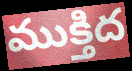
ముక్తిద